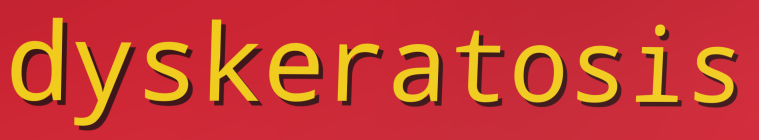
dyskeratosis